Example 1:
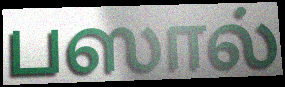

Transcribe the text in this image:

பஸால்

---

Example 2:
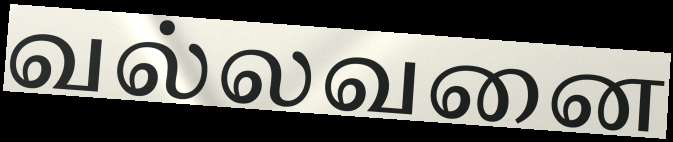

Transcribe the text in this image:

வல்லவனை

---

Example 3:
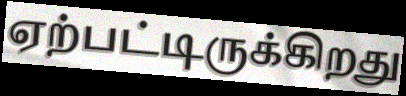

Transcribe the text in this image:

ஏற்பட்டிருக்கிறது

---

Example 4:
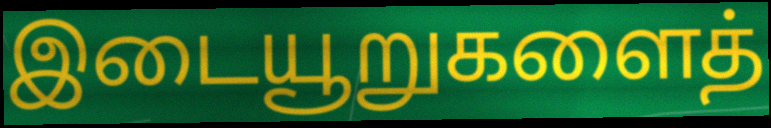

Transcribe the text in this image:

இடையூறுகளைத்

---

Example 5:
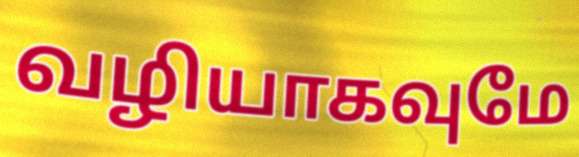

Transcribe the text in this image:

வழியாகவுமே